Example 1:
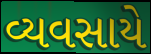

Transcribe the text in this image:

વ્યવસાયે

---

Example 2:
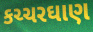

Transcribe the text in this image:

કચ્ચરઘાણ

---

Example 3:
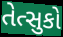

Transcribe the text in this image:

તેત્સુકો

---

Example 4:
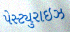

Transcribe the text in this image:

પેસ્ટ્યુરાઇઝ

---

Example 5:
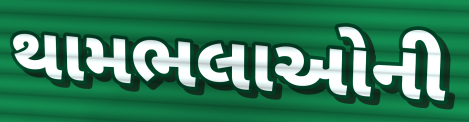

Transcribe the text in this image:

થામભલાઓની